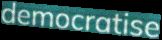
democratise